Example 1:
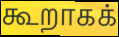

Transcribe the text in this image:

கூறாகக்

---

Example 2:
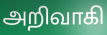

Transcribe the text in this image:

அறிவாகி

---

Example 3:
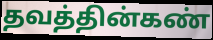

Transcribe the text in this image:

தவத்தின்கண்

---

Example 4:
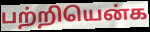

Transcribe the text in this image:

பற்றியென்க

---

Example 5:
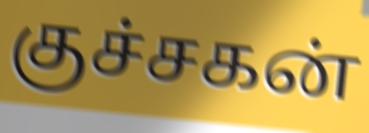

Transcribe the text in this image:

குச்சகன்